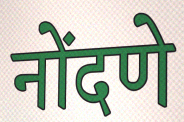
नोंदणे